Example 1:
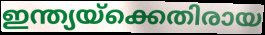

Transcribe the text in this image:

ഇന്ത്യയ്ക്കെതിരായ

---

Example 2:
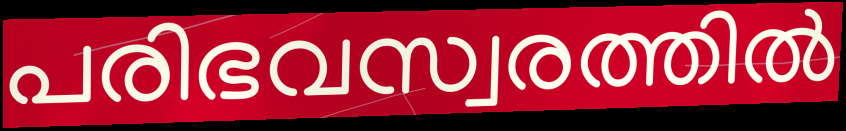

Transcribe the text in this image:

പരിഭവസ്വരത്തിൽ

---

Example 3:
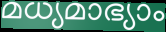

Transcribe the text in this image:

മധ്യമാഭ്യാം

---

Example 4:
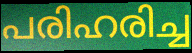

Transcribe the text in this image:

പരിഹരിച്ച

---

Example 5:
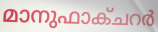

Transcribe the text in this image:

മാനുഫാക്ചറർ